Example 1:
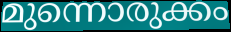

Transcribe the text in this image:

മുന്നൊരുക്കം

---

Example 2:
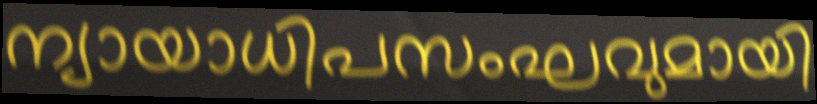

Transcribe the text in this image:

ന്യായാധിപസംഘവുമായി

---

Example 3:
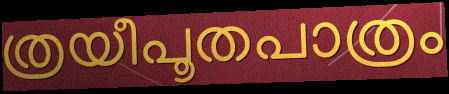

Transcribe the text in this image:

ത്രയീപൂതപാത്രം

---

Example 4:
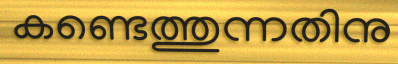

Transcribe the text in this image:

കണ്ടെത്തുന്നതിനു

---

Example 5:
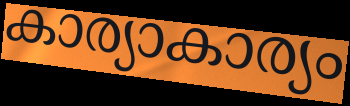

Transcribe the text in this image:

കാര്യാകാര്യം